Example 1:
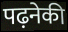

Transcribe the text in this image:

पढ़नेकी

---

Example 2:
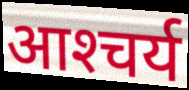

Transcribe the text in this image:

आश्‍चर्य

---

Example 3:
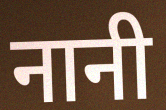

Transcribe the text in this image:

नानी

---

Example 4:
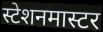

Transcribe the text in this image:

स्टेशनमास्टर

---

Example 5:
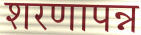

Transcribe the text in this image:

शरणापन्न